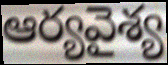
ఆర్యవైశ్య